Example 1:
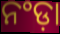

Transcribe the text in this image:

ନଂଡ଼ା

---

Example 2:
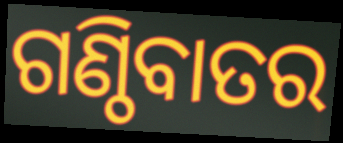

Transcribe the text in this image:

ଗଣ୍ଠିବାତର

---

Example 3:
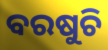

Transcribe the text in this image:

ବରଷୁଚି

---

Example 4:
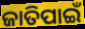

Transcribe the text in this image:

ଜାତିପାଇଁ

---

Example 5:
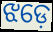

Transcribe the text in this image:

ଝଡ଼େ